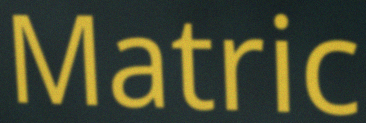
Matric